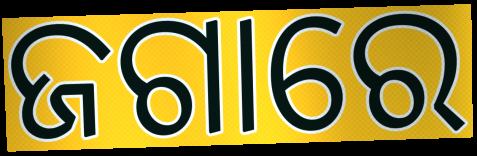
ଜଗାରେ